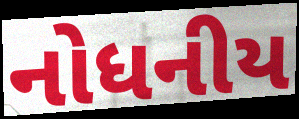
નોધનીય